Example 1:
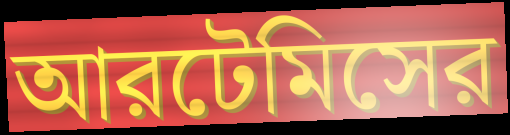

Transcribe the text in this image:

আরটেমিসের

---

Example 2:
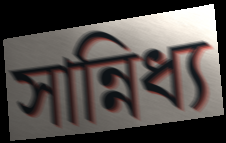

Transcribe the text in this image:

সান্নিধ্য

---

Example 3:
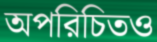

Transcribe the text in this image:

অপরিচিতও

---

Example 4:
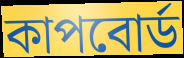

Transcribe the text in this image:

কাপবোর্ড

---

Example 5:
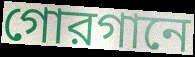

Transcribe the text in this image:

গোরগানে